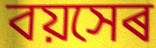
বয়সেৰ